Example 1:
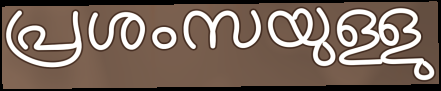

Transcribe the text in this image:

പ്രശംസയുള്ളു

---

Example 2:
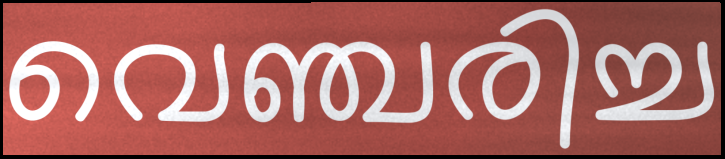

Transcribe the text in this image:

വെഞ്ചരിച്ച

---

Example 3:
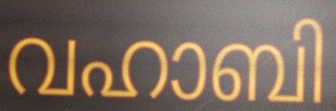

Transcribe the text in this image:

വഹാബി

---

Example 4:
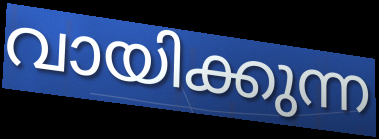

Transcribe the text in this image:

വായിക്കുന്ന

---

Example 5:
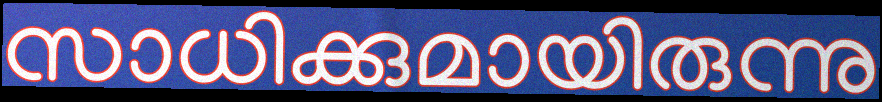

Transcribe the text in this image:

സാധിക്കുമായിരുന്നു